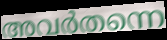
അവർതന്നെ